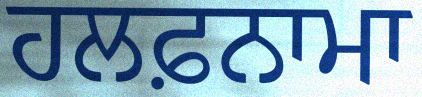
ਹਲਫ਼ਨਾਮਾ